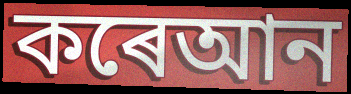
কৰেআন